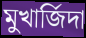
মুখার্জিদা